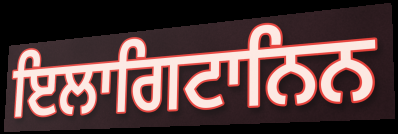
ਇਲਾਗਿਟਾਨਿਨ